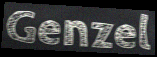
Genzel